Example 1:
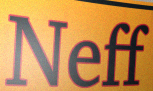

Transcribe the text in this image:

Neff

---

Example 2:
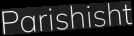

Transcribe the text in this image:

Parishisht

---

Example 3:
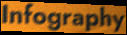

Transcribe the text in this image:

Infography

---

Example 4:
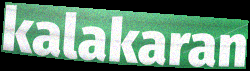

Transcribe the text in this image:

kalakaran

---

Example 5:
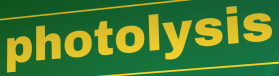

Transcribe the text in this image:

photolysis